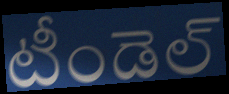
టీండెల్